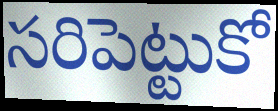
సరిపెట్టుకో